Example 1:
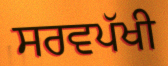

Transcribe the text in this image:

ਸਰਵਪੱਖੀ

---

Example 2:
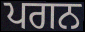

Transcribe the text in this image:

ਪਗਨ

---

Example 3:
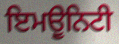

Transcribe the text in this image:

ਇਮਊਨਿਟੀ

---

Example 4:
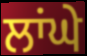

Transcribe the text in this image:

ਲਾਂਘੇ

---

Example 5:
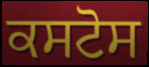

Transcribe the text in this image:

ਕਸਟੋਸ